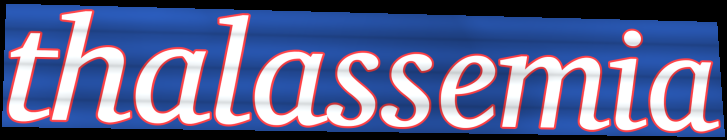
thalassemia